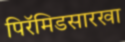
पिरॅमिडसारखा